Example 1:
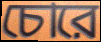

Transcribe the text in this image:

চোরে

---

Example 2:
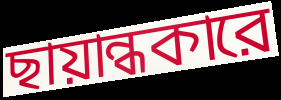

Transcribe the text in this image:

ছায়ান্ধকারে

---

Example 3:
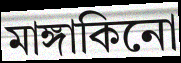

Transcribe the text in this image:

মাঙ্গাকিনো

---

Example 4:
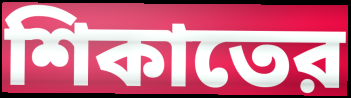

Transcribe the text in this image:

শিকাতের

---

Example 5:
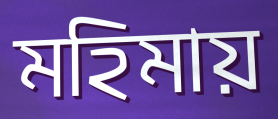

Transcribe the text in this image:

মহিমায়